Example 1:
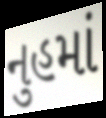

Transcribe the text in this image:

નુહમાં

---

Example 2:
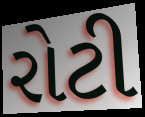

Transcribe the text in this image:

રોટી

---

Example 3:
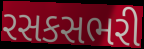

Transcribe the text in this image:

રસકસભરી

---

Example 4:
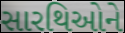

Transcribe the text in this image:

સારથિઓને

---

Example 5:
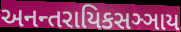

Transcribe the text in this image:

અનન્તરાયિકસઞ્ઞાય